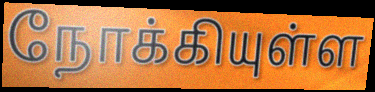
நோக்கியுள்ள